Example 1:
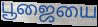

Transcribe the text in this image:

பூஜையை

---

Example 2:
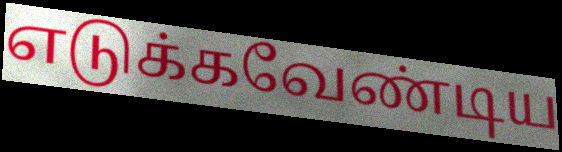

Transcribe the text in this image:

எடுக்கவேண்டிய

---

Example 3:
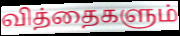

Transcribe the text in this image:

வித்தைகளும்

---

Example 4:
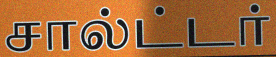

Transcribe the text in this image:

சால்ட்டர்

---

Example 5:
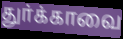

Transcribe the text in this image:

துர்க்காவை